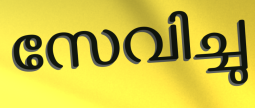
സേവിച്ചു